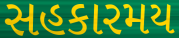
સહકારમય